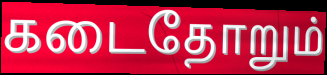
கடைதோறும்